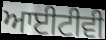
ਆਈਟੀਵੀ